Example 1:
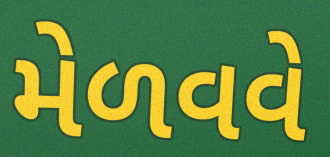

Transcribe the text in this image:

મેળવવે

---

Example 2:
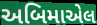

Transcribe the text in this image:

અબિમાએલ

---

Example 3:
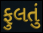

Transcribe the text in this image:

ફુલતું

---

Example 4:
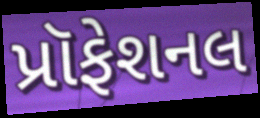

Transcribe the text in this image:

પ્રૉફેશનલ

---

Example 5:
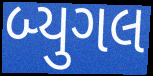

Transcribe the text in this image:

બ્યુગલ